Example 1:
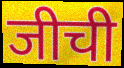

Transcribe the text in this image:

जीची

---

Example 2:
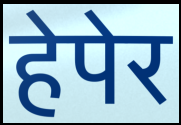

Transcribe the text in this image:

हेपेर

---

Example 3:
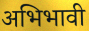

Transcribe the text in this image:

अभिभावी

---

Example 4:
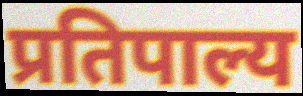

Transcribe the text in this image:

प्रतिपाल्य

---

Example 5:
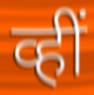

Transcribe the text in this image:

व्हीं